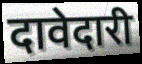
दावेदारी